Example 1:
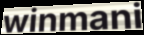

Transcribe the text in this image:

winmani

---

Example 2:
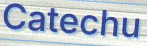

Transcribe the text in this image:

Catechu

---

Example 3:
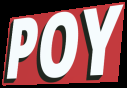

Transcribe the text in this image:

POY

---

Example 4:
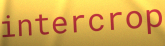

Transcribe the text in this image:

intercrop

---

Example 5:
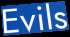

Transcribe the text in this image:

Evils